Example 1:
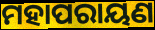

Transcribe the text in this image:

ମହାପରାୟଣ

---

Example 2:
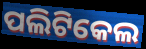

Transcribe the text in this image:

ପଲିଟିକେଲ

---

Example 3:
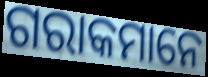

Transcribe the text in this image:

ଗରାକମାନେ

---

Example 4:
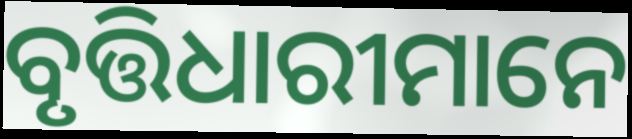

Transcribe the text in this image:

ବୃତ୍ତିଧାରୀମାନେ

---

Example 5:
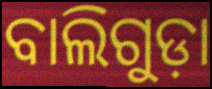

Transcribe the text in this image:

ବାଲିଗୁଡ଼ା